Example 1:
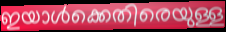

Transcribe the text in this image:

ഇയാൾക്കെതിരെയുള്ള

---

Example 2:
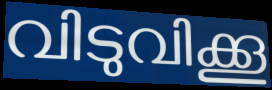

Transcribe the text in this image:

വിടുവിക്കൂ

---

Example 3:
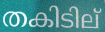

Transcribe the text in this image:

തകിടില്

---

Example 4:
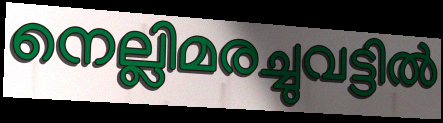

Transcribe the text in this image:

നെല്ലിമരച്ചുവട്ടിൽ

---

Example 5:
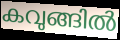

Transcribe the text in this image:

കവുങ്ങിൽ